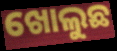
ଖୋଲୁଛ